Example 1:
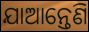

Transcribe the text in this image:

ଯାଆନ୍ତେଣି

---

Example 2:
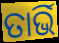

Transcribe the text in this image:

ତାର୍ଭି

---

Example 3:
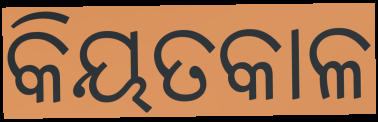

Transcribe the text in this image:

କିୟତକାଳ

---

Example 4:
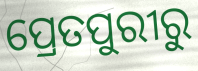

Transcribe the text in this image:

ପ୍ରେତପୁରୀରୁ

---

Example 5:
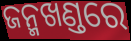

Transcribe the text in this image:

ଜନ୍ମଖଣ୍ଡରେ